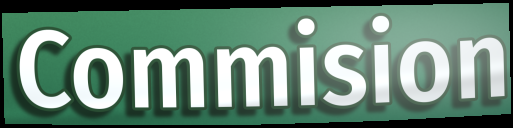
Commision